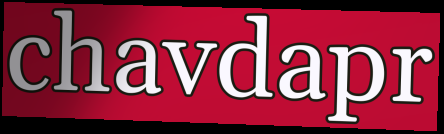
chavdapr